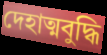
দেহাত্মবুদ্ধি